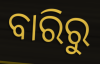
ବାରିରୁ